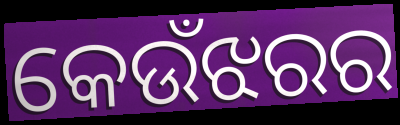
କେଉଁଝରର